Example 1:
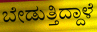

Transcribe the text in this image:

ಬೇಡುತ್ತಿದ್ದಾಳೆ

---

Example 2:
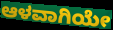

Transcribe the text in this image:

ಆಳವಾಗಿಯೇ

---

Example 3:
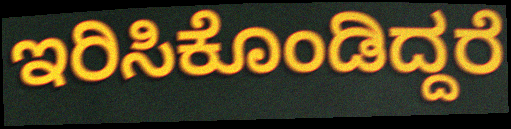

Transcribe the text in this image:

ಇರಿಸಿಕೊಂಡಿದ್ದರೆ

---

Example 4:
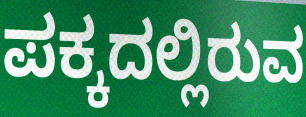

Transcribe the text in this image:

ಪಕ್ಕದಲ್ಲಿರುವ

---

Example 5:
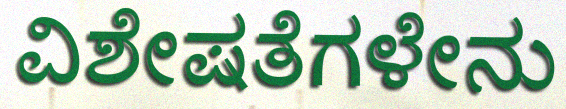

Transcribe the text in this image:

ವಿಶೇಷತೆಗಳೇನು